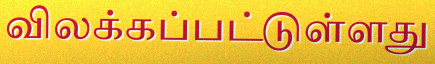
விலக்கப்பட்டுள்ளது